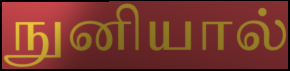
நுனியால்